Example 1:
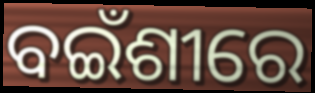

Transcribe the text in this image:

ବଇଁଶୀରେ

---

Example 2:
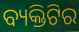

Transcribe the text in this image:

ବ୍ୟକ୍ତିଟିର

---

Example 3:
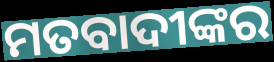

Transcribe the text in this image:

ମତବାଦୀଙ୍କର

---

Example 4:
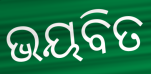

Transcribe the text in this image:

ଭୟବିତ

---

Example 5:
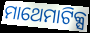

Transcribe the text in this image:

ମାଥେମାଟିକ୍ସ